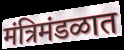
मंत्रिमंडळात